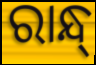
ରାନ୍ଧ୍